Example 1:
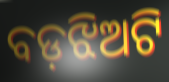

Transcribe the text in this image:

ବଡ଼ଝିଅଟି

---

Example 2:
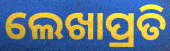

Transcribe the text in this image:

ଲେଖାପ୍ରତି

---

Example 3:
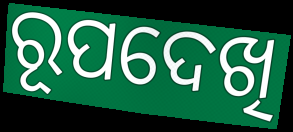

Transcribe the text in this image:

ରୂପଦେଖି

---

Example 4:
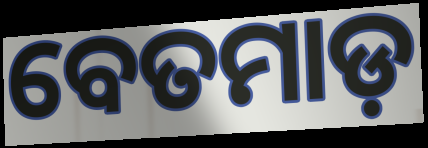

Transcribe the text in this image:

ବେତମାଡ଼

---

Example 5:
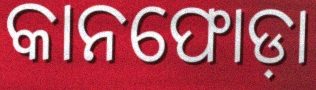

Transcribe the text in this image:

କାନଫୋଡ଼ା